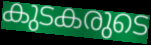
കുടകരുടെ